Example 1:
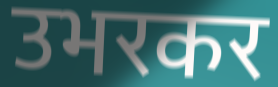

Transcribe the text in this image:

उभरकर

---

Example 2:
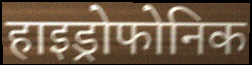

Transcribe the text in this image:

हाइड्रोफोनिक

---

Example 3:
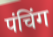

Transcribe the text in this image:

पंचिंग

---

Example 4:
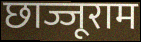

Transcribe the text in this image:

छाज्जूराम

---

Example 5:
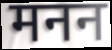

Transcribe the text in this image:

मनन